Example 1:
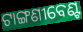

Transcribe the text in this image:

ଟାଙ୍ଗଣୀବେଣ୍ଟ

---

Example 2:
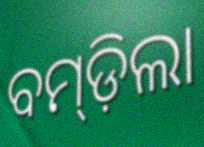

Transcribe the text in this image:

ବମ୍‍ଡ଼ିଲା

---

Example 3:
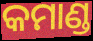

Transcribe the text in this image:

କମାଣ୍ଡ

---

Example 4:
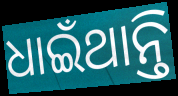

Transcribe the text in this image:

ଧାଇଁଥାନ୍ତି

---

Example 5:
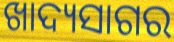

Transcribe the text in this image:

ଖାଦ୍ୟସାଗର